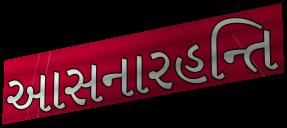
આસનારહન્તિ